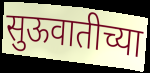
सुऊवातीच्या